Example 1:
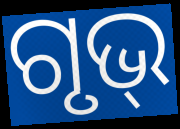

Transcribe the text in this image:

ଗୃଭ୍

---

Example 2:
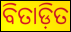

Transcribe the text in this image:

ବିତାଡ଼ିତ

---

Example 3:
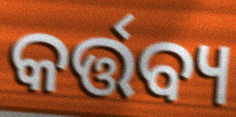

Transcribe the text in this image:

କର୍ତ୍ତବ୍ୟ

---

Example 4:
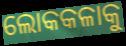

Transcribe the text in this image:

ଲୋକକଳାକୁ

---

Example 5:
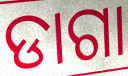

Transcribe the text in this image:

ଡାଗା